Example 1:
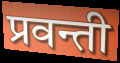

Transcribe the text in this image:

प्रवन्ती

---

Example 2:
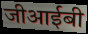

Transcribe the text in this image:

जीआईबी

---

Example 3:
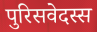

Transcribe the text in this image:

पुरिसवेदस्स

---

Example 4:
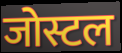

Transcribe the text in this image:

जोस्टल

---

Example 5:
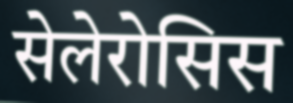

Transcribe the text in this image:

सेलेरोसिस